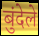
बुंदेले